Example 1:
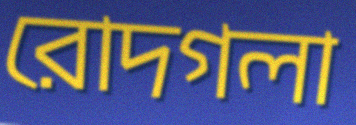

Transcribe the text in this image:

রোদগলা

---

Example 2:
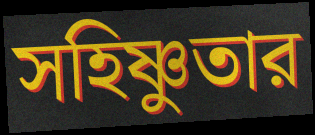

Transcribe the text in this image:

সহিষ্ণুতার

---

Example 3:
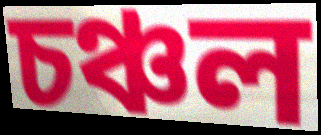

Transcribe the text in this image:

চঞ্চল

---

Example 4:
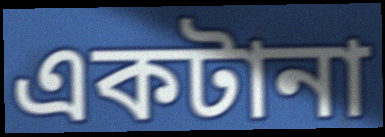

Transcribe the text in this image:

একটানা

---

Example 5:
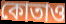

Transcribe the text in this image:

কোতাও